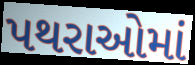
પથરાઓમાં